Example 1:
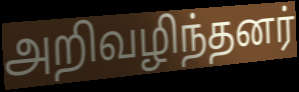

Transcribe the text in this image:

அறிவழிந்தனர்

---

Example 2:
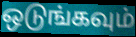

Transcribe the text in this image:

ஒடுங்கவும்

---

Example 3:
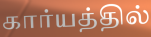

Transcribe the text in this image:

கார்யத்தில்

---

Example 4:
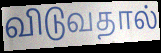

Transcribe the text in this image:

விடுவதால்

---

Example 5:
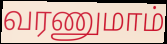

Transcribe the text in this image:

வரணுமாம்